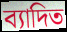
ব্যাদিত